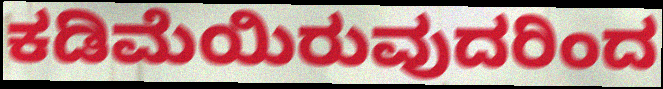
ಕಡಿಮೆಯಿರುವುದರಿಂದ